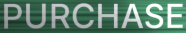
PURCHASE